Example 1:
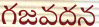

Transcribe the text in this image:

గజవదన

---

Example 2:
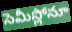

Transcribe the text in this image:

సెమీస్లోనూ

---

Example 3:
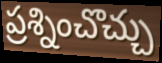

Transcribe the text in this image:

ప్రశ్నించొచ్చు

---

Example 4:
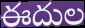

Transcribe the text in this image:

ఈదుల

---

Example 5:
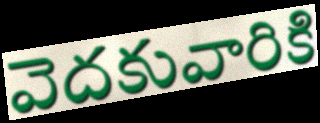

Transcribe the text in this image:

వెదకువారికి